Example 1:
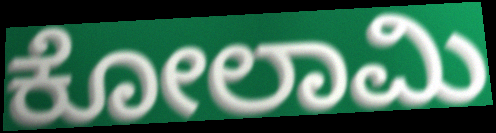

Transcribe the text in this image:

ಕೋಲಾಮಿ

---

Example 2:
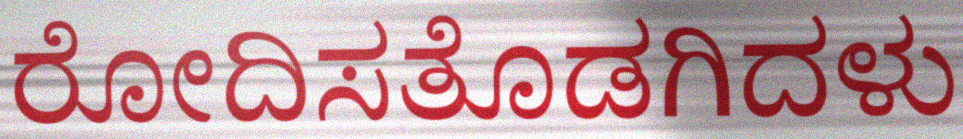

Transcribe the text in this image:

ರೋದಿಸತೊಡಗಿದಳು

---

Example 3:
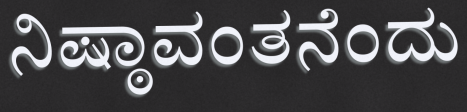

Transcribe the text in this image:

ನಿಷ್ಠಾವಂತನೆಂದು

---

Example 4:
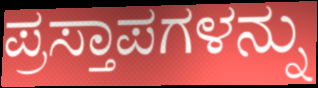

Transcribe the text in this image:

ಪ್ರಸ್ತಾಪಗಳನ್ನು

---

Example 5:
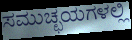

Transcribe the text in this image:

ಸಮುಚ್ಛಯಗಳಲ್ಲಿ